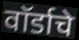
वॉर्डाचे